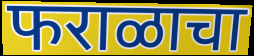
फराळाचा